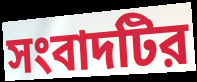
সংবাদটির